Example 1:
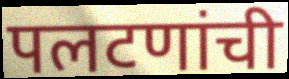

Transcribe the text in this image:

पलटणांची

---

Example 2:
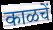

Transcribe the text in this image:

काळचें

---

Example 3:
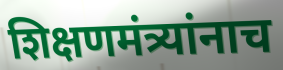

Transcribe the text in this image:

शिक्षणमंत्र्यांनाच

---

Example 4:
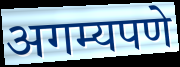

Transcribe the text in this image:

अगम्यपणे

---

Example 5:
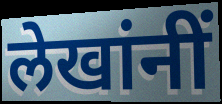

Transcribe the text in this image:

लेखांनीं